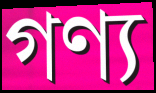
গণ্য